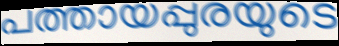
പത്തായപ്പുരയുടെ